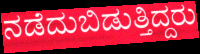
ನಡೆದುಬಿಡುತ್ತಿದ್ದರು